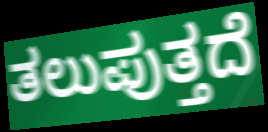
ತಲುಪುತ್ತದೆ